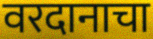
वरदानाचा